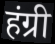
हंग्री